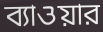
ব্যাওয়ার